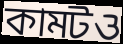
কামটও